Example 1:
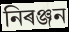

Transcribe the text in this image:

নিৰঞ্জন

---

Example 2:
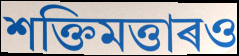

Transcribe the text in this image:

শক্তিমত্তাৰও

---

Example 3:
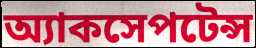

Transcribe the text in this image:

অ্যাকসেপটেন্স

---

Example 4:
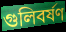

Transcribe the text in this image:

গুলিবৰ্ষণ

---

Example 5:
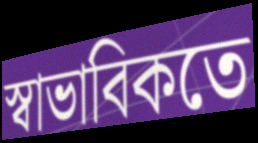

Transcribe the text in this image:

স্বাভাবিকতে